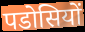
पडोसियों